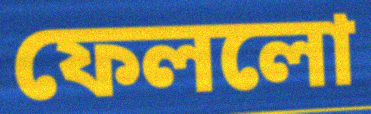
ফেললো